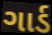
ગાર્ડ